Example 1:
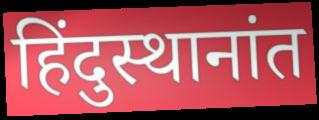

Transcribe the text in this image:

हिंदुस्थानांत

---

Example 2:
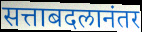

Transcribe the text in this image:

सत्ताबदलानंतर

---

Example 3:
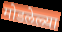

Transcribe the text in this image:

मोडलेल्या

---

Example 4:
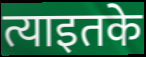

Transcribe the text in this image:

त्याइतके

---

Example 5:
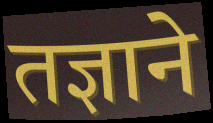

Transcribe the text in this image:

तज्ञाने